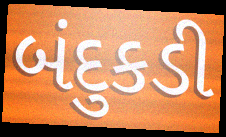
બંદુકડી